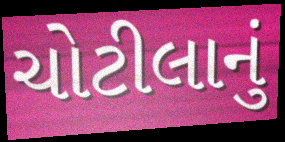
ચોટીલાનું